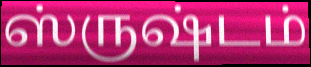
ஸ்ருஷ்டம்